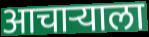
आचाऱ्याला